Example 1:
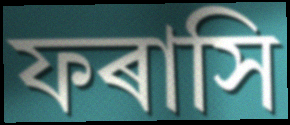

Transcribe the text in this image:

ফৰাসি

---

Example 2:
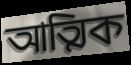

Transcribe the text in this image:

আত্মিক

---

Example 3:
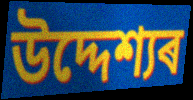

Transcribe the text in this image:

উদ্দেশ্যৰ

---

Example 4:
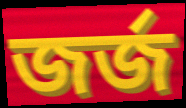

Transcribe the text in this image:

জৰ্জ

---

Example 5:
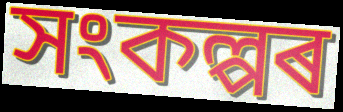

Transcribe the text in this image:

সংকল্পৰ